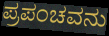
ಪ್ರಪಂಚವನು